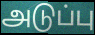
அடுப்பு